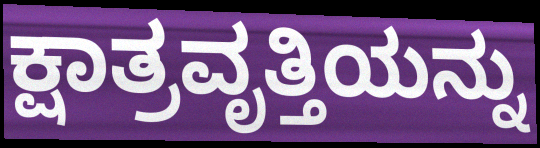
ಕ್ಷಾತ್ರವೃತ್ತಿಯನ್ನು